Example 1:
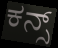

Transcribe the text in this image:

ಕನ್ಸ್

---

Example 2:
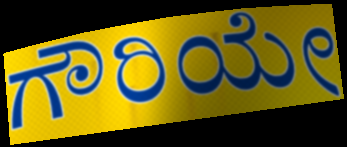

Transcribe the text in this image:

ಗೌರಿಯೇ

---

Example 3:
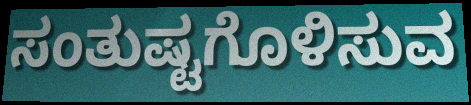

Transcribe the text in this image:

ಸಂತುಷ್ಟಗೊಳಿಸುವ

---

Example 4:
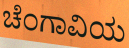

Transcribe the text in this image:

ಚೆಂಗಾವಿಯ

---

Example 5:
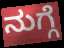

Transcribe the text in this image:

ನುಗ್ಗೆ